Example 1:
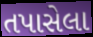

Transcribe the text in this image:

તપાસેલા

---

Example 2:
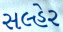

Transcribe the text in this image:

સલ્હેર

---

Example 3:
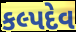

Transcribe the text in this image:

કલ્પદેવ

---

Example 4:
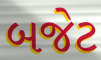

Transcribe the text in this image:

બજેટ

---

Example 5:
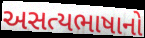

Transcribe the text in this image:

અસત્યભાષાનો